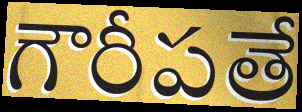
గౌరీపతే